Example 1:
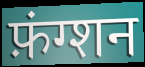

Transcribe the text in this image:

फ़ंग्शन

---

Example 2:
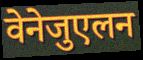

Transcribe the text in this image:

वेनेजुएलन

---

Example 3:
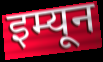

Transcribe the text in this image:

इम्‍यून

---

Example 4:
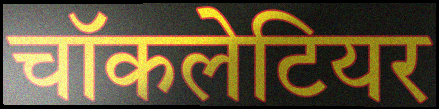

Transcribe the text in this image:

चॉकलेटियर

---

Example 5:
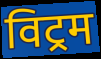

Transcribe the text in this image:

विट्रम